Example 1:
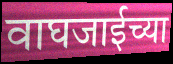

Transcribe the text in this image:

वाघजाईच्या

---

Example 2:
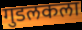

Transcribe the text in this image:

गुडलकला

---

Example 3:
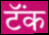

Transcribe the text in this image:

टॅंक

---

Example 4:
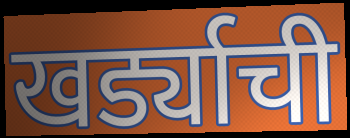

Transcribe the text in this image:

खर्ड्याची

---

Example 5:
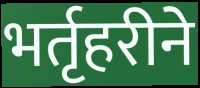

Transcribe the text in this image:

भर्तृहरीने